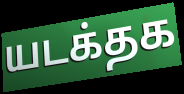
யடக்தக